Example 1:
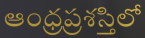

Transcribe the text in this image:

ఆంధ్రప్రశస్తిలో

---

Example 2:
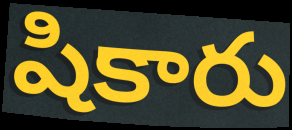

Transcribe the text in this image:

షికారు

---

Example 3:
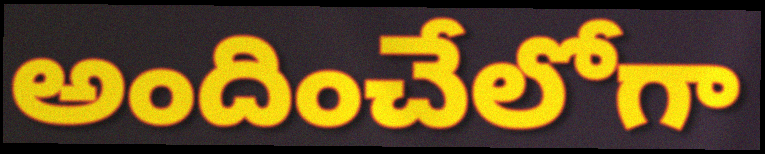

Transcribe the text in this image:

అందించేలోగా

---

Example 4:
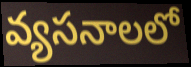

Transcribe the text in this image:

వ్యసనాలలో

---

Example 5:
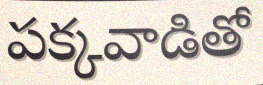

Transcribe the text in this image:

పక్కవాడితో